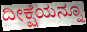
ದೀಕ್ಷೆಯನ್ನೂ